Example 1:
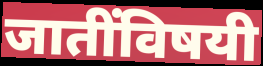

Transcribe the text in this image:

जातींविषयी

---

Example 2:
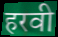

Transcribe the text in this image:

हरवी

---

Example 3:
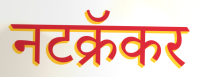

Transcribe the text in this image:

नटक्रॅकर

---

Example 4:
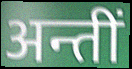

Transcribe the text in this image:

अन्तीं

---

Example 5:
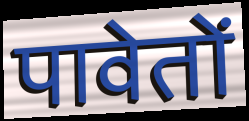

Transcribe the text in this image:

पावेतों